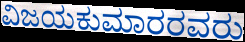
ವಿಜಯಕುಮಾರರವರು